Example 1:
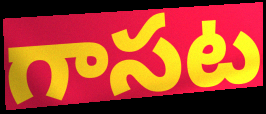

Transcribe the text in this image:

గాసట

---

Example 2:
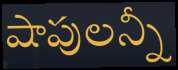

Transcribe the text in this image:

షాపులన్నీ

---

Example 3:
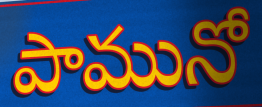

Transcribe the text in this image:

పామునో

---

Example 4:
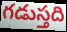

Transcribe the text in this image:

గడుస్తది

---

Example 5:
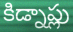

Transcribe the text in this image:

కిడ్నాప్లు